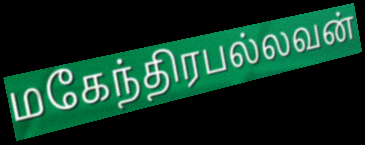
மகேந்திரபல்லவன்